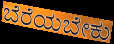
ಬೆರೆಯಬೇಕು